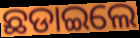
ଛଡାଇଲେ